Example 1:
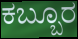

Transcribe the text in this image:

ಕಬ್ಬೂರ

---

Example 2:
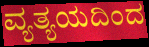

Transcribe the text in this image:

ವ್ಯತ್ಯಯದಿಂದ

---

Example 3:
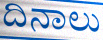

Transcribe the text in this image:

ದಿನಾಲು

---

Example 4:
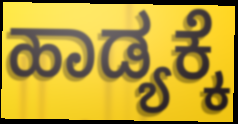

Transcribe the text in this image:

ಹಾಡ್ಯಕ್ಕೆ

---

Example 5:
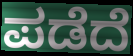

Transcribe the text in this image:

ಪಡೆದೆ